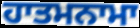
ਹਾਤਮਨਾਮਾ